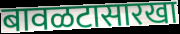
बावळटासारखा